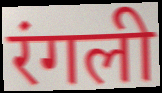
रंगली